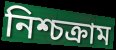
নিশ্চক্রাম